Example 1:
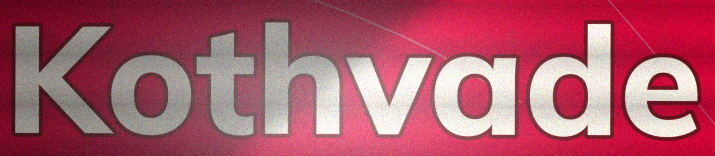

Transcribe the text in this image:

Kothvade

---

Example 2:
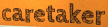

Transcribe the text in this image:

caretaker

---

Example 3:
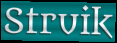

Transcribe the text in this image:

Struik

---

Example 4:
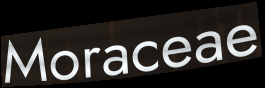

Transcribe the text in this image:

Moraceae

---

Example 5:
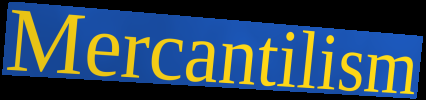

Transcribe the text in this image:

Mercantilism